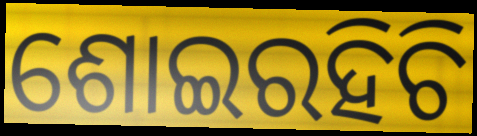
ଶୋଇରହିଚି